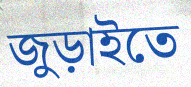
জুড়াইতে